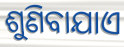
ଶୁଣିବାଯାଏ